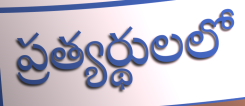
ప్రత్యర్థులలో